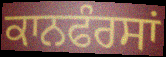
ਕਾਨਫੰਰਸਾਂ